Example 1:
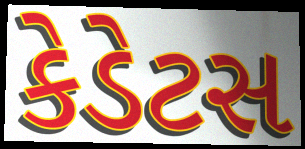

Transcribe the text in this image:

કેડેટસ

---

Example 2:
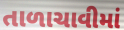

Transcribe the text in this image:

તાળાચાવીમાં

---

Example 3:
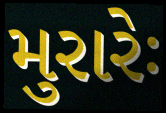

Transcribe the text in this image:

મુરારેઃ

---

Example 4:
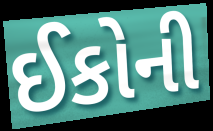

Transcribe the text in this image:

ઈકોની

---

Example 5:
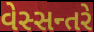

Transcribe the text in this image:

વેસ્સન્તરે